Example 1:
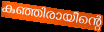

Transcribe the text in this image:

കുഞ്ഞിരായീന്റെ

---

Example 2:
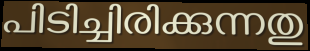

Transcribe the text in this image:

പിടിച്ചിരിക്കുന്നതു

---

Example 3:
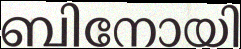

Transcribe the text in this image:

ബിനോയി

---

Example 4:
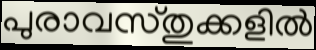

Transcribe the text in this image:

പുരാവസ്തുക്കളിൽ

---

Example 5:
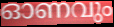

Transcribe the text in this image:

ഓണവും